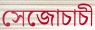
সেজোচাচী